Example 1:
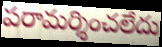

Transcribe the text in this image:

పరామర్శించలేదు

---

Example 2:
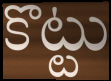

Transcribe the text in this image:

కొట్టు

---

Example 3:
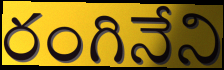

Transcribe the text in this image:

రంగినేని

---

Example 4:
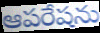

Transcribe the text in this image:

ఆపరేషను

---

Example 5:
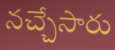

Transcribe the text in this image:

నచ్చేసారు